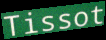
Tissot